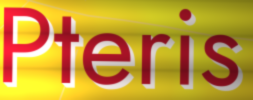
Pteris